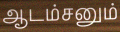
ஆடம்சனும்